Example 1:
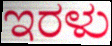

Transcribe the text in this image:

ಇರಳು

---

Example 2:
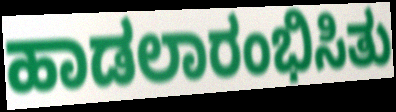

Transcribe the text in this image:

ಹಾಡಲಾರಂಭಿಸಿತು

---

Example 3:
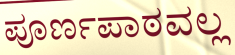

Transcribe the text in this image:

ಪೂರ್ಣಪಾಠವಲ್ಲ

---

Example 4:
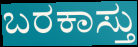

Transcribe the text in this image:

ಬರಕಾಸ್ತು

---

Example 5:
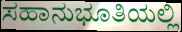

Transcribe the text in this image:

ಸಹಾನುಭೂತಿಯಲ್ಲಿ